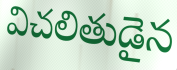
విచలితుడైన